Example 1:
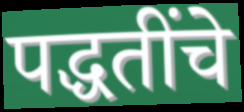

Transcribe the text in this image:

पद्धतींचे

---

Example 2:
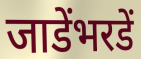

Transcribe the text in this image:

जाडेंभरडें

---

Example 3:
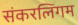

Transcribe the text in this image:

संकरलिंगम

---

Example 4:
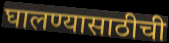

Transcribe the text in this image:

घालण्यासाठीची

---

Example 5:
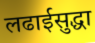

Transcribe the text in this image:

लढाईसुद्धा